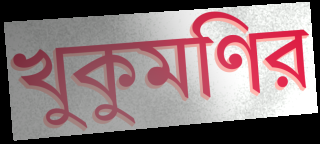
খুকুমণির